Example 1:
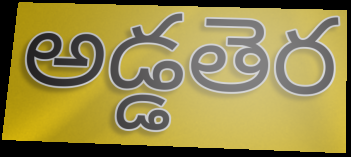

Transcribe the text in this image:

అడ్డతెర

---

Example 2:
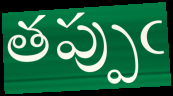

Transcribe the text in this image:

తప్పుఁ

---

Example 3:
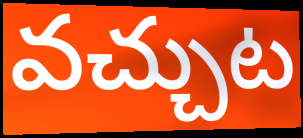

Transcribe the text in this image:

వచ్చుట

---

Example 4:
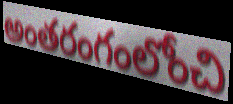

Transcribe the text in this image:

అంతరంగంలోంచి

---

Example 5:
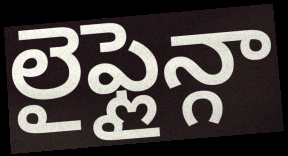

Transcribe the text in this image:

లైఫ్లైన్గా